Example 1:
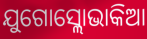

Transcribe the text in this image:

ଯୁଗୋସ୍ଲୋଭାକିଆ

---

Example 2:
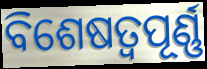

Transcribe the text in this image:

ବିଶେଷତ୍ୱପୂର୍ଣ୍ଣ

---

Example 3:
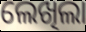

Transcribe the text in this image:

ଲେଖିଲା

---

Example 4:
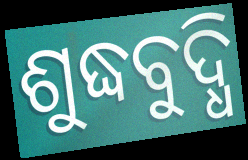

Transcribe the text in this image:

ଶୁଦ୍ଧବୁଦ୍ଧି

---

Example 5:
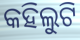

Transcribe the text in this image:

କହିଲୁଟି